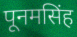
पूनमसिंह